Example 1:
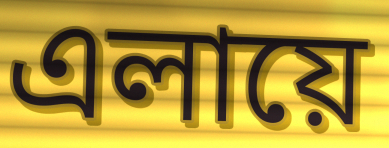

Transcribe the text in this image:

এলায়ে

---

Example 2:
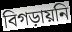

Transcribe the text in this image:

বিগড়ায়নি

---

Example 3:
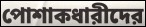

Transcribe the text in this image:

পোশাকধারীদের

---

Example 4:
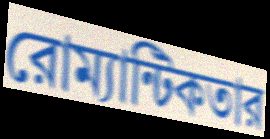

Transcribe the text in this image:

রোম্যান্টিকতার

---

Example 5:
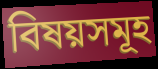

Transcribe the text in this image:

বিষয়সমূহ